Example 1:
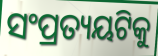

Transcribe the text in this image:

ସଂପ୍ରତ୍ୟୟଟିକୁ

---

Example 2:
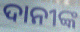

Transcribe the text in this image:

ଦାନୀଙ୍କ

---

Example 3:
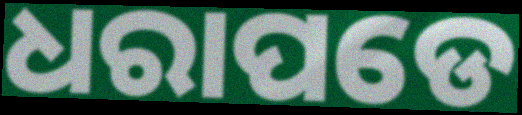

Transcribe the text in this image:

ଧରାପଡେ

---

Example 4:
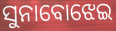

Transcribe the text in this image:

ସୁନାବୋଝେଇ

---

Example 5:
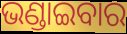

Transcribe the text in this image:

ଭଣ୍ଡାଇବାର